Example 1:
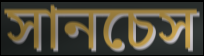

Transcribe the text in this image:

সানচেস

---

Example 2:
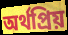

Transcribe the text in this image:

অর্থপ্রিয়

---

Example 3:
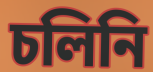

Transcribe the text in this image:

চলিনি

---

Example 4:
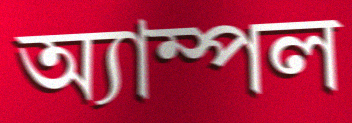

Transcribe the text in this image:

অ্যাম্পল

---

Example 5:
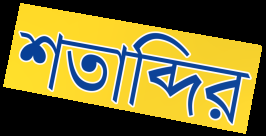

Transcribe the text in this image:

শতাব্দির